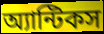
অ্যান্টিকস